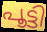
പൂട്ടി